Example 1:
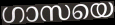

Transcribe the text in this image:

ഗാസയെ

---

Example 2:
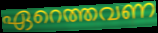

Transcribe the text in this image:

ഏറെത്തവണ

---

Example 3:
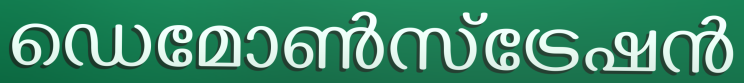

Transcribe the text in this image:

ഡെമോൺസ്ട്രേഷൻ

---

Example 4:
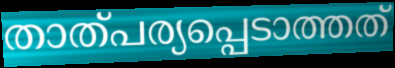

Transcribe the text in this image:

താത്പര്യപ്പെടാത്തത്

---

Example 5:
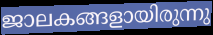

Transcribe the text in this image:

ജാലകങ്ങളായിരുന്നു